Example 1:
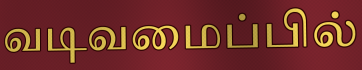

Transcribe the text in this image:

வடிவமைப்பில்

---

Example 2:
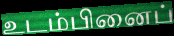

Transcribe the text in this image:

உடம்பினைப்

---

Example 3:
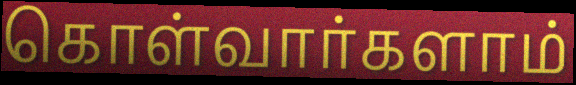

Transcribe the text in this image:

கொள்வார்களாம்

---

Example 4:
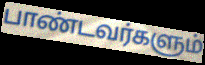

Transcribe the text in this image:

பாண்டவர்களும்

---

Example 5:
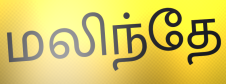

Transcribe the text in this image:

மலிந்தே